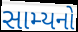
સામ્યનો